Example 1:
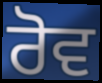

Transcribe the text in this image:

ਰੋਵ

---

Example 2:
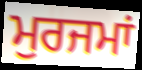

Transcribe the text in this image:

ਮੁਰਜਮਾਂ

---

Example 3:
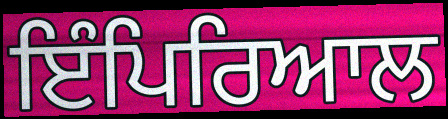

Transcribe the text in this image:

ਇੰਪਿਰਿਆਲ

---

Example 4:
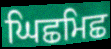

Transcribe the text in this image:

ਘਿਛਮਿਛ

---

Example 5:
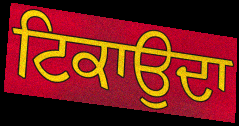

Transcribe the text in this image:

ਟਿਕਾਉਦਾ